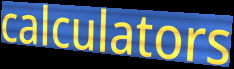
calculators